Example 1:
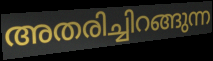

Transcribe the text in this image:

അതരിച്ചിറങ്ങുന്ന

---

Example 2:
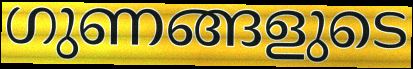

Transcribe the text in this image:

ഗുണങ്ങളുടെ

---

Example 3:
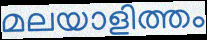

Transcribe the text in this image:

മലയാളിത്തം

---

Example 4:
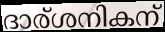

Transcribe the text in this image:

ദാര്ശനികന്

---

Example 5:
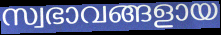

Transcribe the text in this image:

സ്വഭാവങ്ങളായ